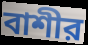
বাশীর